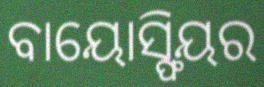
ବାୟୋସ୍ଫିୟର